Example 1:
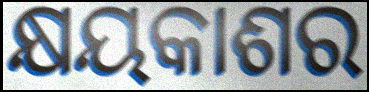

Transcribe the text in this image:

କ୍ଷୟକାଶର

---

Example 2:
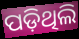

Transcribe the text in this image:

ପଡ଼ିଥିଲି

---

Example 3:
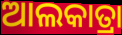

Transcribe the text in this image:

ଆଲକାତ୍ରା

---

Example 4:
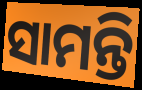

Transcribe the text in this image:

ସାମନ୍ତି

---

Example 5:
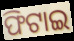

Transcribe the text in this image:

ଫିଟାଇ